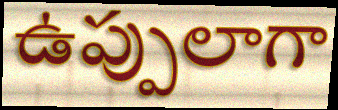
ఉప్పులాగా